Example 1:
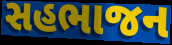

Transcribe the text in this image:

સહભાજન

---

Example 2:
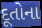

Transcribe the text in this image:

દૂતોના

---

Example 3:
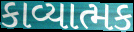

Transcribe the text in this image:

કાવ્યાત્મક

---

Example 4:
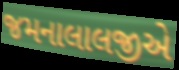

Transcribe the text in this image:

જમનાલાલજીએ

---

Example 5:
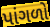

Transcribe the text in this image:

પાંગળો